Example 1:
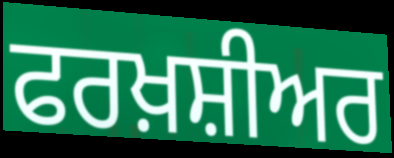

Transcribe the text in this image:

ਫਰਖ਼ਸ਼ੀਅਰ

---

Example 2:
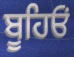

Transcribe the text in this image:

ਬੂਹਿਓਂ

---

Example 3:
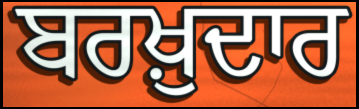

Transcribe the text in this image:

ਬਰਖ਼ੁਦਾਰ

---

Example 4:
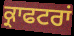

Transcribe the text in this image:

ਕ੍ਰਾਫਟਰਾਂ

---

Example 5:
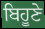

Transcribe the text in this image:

ਬਿਹੂਣੇ